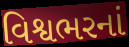
વિશ્વભરનાં